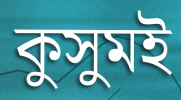
কুসুমই